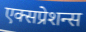
एक्सप्रेशन्स